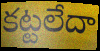
కట్టలేదా